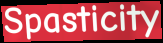
Spasticity